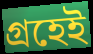
গ্রহেই